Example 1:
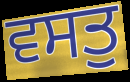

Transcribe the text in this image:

ਵਸਤੁ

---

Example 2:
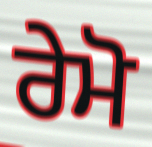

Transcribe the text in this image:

ਰੇਮੋ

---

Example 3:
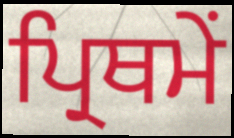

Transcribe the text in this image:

ਪ੍ਰਿਥਮੇਂ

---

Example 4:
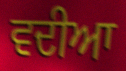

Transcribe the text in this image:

ਵਦੀਆ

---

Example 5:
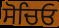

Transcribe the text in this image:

ਸੋਚਿਓ